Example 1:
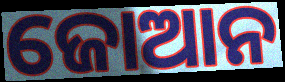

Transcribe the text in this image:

ଜୋଆନ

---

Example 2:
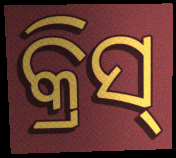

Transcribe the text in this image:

କ୍ରିସ୍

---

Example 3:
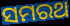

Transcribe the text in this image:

ସମରଥ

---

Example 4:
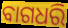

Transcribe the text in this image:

ବାଗଧରି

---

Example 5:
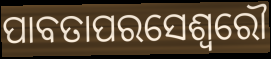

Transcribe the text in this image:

ପାବତାପରସେଶ୍ୱରୌ